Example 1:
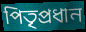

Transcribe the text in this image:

পিতৃপ্ৰধান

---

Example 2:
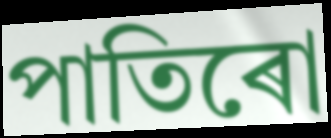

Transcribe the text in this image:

পাতিৰো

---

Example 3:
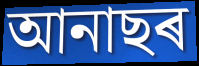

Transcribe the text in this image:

আনাছৰ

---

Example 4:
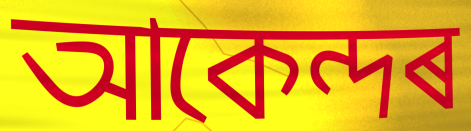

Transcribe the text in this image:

আকেন্দৰ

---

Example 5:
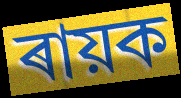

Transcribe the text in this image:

ৰায়ক